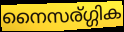
നൈസര്ഗ്ഗിക